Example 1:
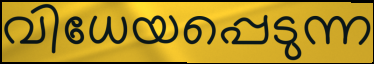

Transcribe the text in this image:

വിധേയപ്പെടുന്ന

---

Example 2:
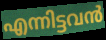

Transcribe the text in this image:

എന്നിട്ടവൻ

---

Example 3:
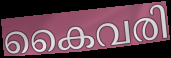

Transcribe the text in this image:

കൈവരി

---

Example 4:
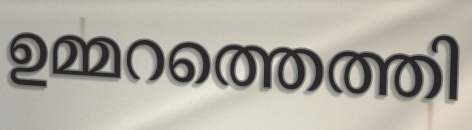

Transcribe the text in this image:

ഉമ്മറത്തെത്തി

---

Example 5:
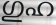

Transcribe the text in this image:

ഗുഹ